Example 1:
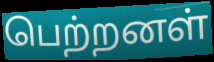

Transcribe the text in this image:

பெற்றனள்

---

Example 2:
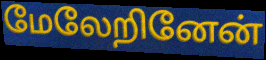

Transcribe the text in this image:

மேலேறினேன்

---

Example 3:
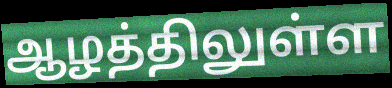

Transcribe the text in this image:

ஆழத்திலுள்ள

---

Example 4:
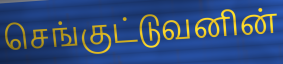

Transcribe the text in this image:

செங்குட்டுவனின்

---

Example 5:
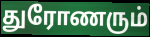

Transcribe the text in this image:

துரோணரும்